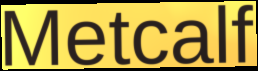
Metcalf